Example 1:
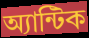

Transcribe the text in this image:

অ্যান্টিক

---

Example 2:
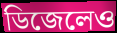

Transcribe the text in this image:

ডিজেলেও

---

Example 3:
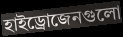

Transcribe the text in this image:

হাইড্রোজেনগুলো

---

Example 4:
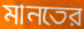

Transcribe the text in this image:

মানতের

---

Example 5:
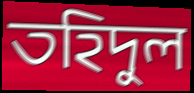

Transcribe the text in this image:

তহিদুল